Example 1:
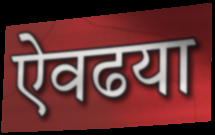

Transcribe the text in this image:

ऐवढया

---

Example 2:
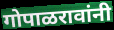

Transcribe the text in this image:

गोपाळरावांनी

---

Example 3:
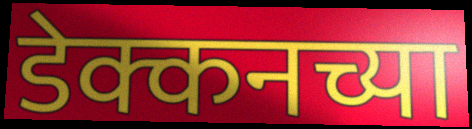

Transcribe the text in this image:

डेक्कनच्या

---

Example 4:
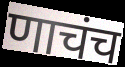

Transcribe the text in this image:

णाचंच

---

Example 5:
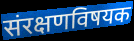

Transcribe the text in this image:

संरक्षणविषयक